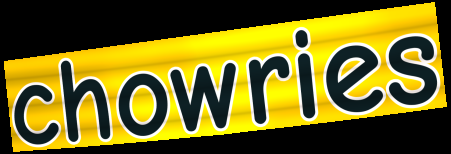
chowries